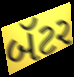
બૅટર